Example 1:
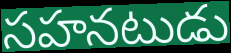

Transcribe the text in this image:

సహనటుడు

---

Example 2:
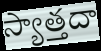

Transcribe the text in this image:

స్యాత్తదా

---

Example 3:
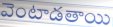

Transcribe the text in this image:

వెంటాడతాయి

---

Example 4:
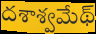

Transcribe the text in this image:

దశాశ్వమేథ్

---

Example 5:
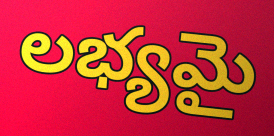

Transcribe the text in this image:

లభ్యమై